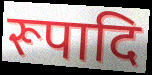
रूपादि